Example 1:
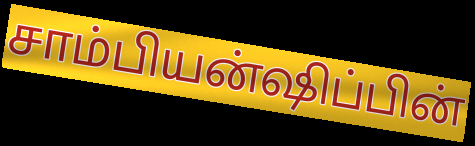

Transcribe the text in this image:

சாம்பியன்ஷிப்பின்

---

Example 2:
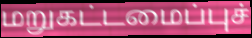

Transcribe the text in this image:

மறுகட்டமைப்புச்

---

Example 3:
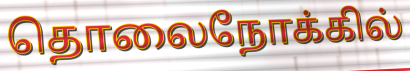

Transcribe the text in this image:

தொலைநோக்கில்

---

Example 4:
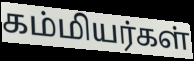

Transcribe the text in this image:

கம்மியர்கள்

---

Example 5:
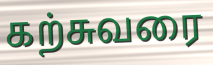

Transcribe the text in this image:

கற்சுவரை